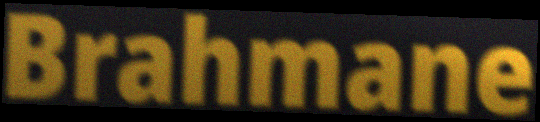
Brahmane